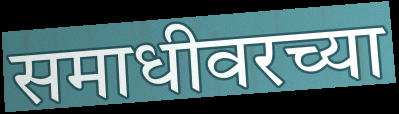
समाधीवरच्या